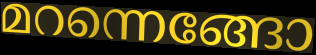
മറന്നെങ്ങോ